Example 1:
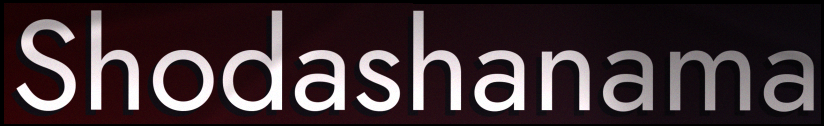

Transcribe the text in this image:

Shodashanama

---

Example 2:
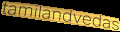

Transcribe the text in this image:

tamilandvedas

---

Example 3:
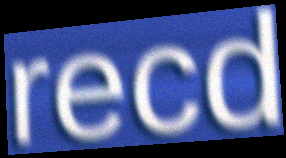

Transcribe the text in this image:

recd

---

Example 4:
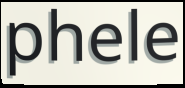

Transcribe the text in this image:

phele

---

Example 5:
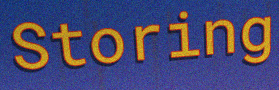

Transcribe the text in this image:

Storing